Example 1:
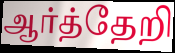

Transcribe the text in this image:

ஆர்த்தேறி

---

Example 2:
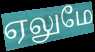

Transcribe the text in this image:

ஏலுமே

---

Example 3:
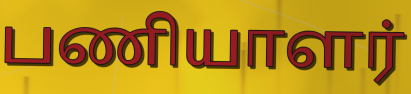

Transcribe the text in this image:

பணியாளர்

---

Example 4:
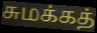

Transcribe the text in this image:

சுமக்கத்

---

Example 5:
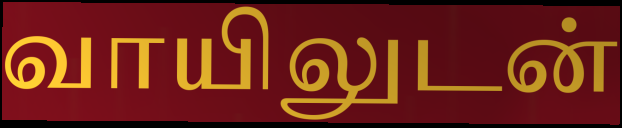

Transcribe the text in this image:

வாயிலுடன்